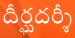
దీర్ఘదర్శీ